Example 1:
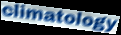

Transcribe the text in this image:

climatology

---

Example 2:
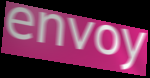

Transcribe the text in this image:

envoy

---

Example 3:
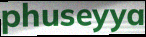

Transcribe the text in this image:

phuseyya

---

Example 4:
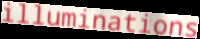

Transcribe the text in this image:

illuminations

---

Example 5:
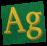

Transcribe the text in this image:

Ag